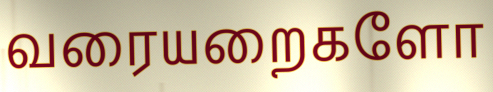
வரையறைகளோ